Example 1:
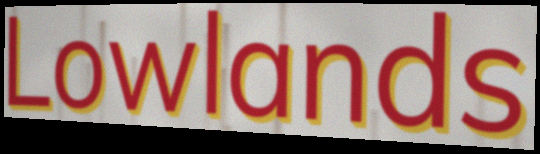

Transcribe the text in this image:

Lowlands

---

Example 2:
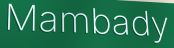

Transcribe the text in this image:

Mambady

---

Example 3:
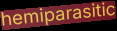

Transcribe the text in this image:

hemiparasitic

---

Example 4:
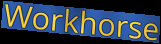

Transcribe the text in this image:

Workhorse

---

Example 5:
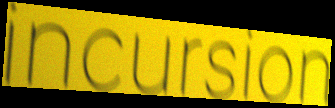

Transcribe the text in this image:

incursion